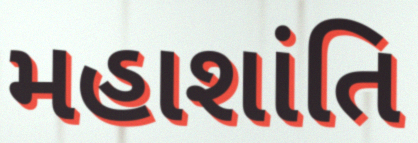
મહાશાંતિ